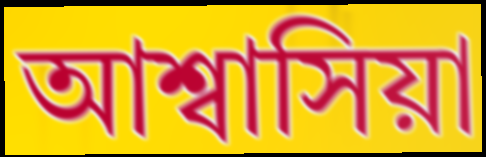
আশ্বাসিয়া